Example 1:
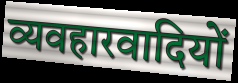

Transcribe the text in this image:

व्यवहारवादियों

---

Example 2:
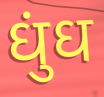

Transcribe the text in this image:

धुंध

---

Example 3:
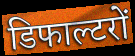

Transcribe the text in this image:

डिफाल्टरों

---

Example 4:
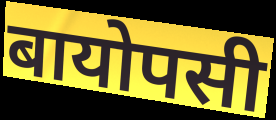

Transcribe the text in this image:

बायोपसी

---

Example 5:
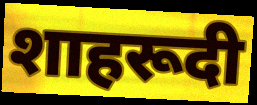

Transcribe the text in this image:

शाहरूदी